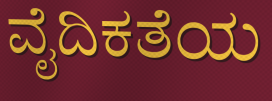
ವೈದಿಕತೆಯ